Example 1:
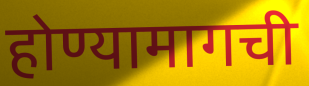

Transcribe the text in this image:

होण्यामागची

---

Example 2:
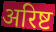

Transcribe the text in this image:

अरिष्ट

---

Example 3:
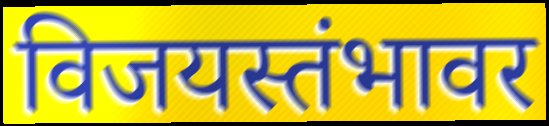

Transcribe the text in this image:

विजयस्तंभावर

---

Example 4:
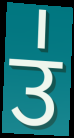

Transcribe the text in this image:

उ॑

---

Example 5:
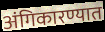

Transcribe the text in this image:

अंगिकारण्यात